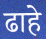
ढाहे